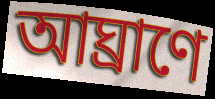
আঘ্রাণে